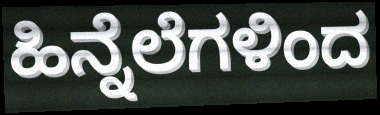
ಹಿನ್ನೆಲೆಗಳಿಂದ